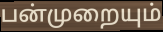
பன்முறையும்